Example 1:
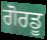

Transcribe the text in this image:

ਗੋਰਡੂ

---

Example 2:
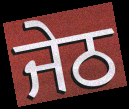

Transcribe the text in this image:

ਜੇਠ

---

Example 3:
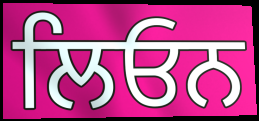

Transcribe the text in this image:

ਲਿਓਨ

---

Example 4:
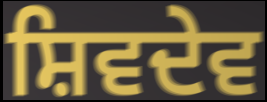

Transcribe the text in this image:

ਸ਼ਿਵਦੇਵ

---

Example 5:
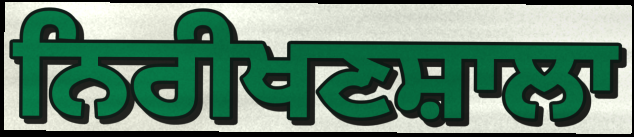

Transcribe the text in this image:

ਨਿਰੀਖਣਸ਼ਾਲਾ